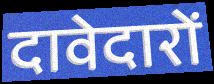
दावेदारों